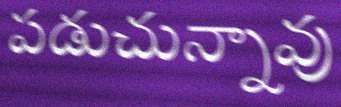
పడుచున్నావు